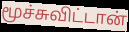
மூச்சுவிட்டான்